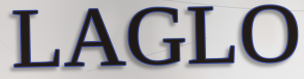
LAGLO